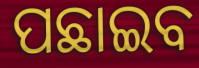
ପଛାଇବ